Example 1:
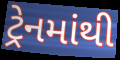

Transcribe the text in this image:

ટ્રેનમાંથી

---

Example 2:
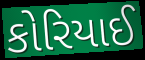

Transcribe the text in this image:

કોરિયાઈ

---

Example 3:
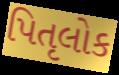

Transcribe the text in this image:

પિતૃલોક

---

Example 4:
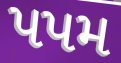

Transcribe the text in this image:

પપમ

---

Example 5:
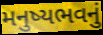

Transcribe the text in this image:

મનુષ્યભવનું